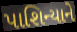
પાશિન્યાને